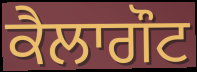
ਕੈਲਾਗੌਟ